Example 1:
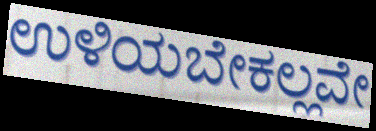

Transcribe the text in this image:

ಉಳಿಯಬೇಕಲ್ಲವೇ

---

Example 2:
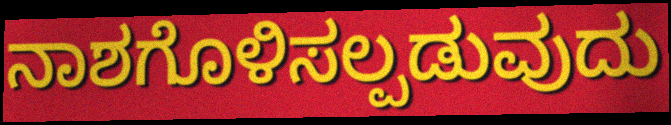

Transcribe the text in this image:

ನಾಶಗೊಳಿಸಲ್ಪಡುವುದು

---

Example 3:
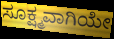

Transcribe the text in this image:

ಸೂಕ್ಷ್ಮವಾಗಿಯೇ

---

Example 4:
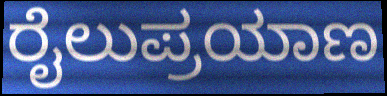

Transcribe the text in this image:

ರೈಲುಪ್ರಯಾಣ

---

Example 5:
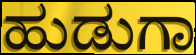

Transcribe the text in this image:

ಹುಡುಗಾ